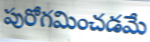
పురోగమించడమే